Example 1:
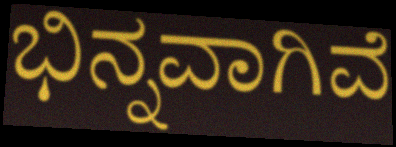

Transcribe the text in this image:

ಭಿನ್ನವಾಗಿವೆ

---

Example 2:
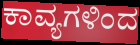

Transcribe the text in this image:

ಕಾವ್ಯಗಳಿಂದ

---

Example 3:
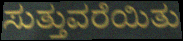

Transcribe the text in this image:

ಸುತ್ತುವರೆಯಿತು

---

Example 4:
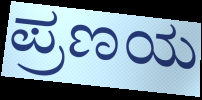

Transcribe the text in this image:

ಪ್ರಣಯ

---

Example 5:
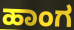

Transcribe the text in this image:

ಹಾಂಗ